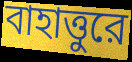
বাহাত্তুরে